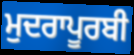
ਮੁਦਰਾਪੂਰਬੀ